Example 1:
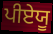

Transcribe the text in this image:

ਪੀਏਯੂ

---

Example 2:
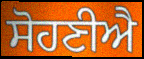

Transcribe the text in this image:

ਸੋਹਣੀਐ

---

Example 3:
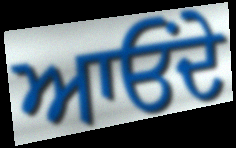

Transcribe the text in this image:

ਆਓਂਦੇ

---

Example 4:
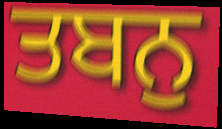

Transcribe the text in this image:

ਤਬਨੁ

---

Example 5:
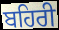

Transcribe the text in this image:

ਬਹਿਰੀ